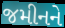
જમીનને